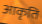
आकृति